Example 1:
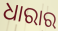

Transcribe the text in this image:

ଧାରାର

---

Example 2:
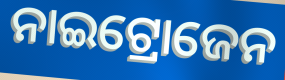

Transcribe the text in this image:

ନାଇଟ୍ରୋଜେନ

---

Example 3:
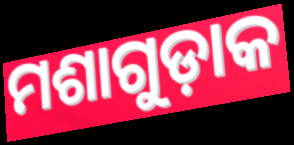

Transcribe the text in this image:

ମଶାଗୁଡ଼ାକ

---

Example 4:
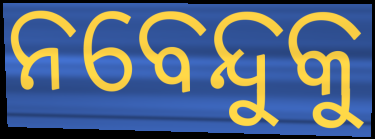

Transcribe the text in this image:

ନବେନ୍ଦୁକୁ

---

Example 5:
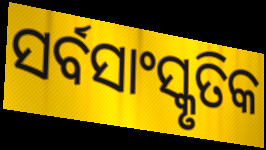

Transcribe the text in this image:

ସର୍ବସାଂସ୍କୃତିକ